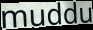
muddu